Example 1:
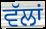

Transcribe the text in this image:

ਵੱਲਾਂ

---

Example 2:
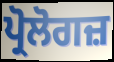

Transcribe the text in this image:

ਪ੍ਰੋਲੋਗਜ਼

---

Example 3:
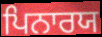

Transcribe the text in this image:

ਪਿਨਾਰਯ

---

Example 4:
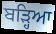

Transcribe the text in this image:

ਬੜ੍ਹਿਆ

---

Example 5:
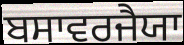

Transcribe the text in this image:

ਬਸਾਵਰਜੈਯਾ